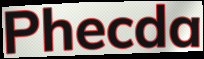
Phecda